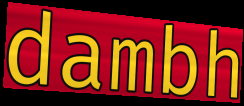
dambh